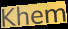
Khem